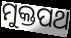
ମୁକ୍ତପଥ